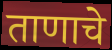
ताणाचे